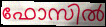
ഫോസിൽ